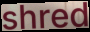
shred